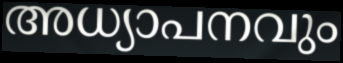
അധ്യാപനവും